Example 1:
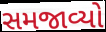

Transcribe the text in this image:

સમજાવ્યો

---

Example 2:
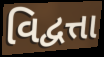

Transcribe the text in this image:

વિદ્વત્તા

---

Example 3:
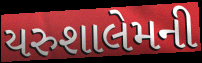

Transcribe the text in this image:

યરુશાલેમની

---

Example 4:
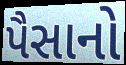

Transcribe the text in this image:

પૈસાનો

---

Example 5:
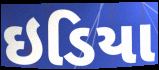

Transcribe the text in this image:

ઇડિયા